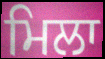
ਮਿਲਾ